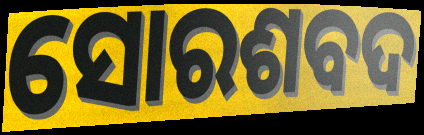
ସୋରଶବଦ